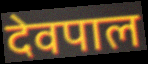
देवपाल